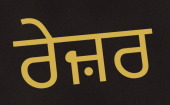
ਰੇਜ਼ਰ